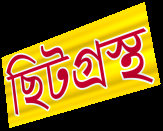
ছিটগ্রস্থ